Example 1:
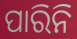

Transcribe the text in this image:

ପାରିନି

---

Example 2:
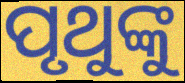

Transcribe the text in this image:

ପୃଥୁଙ୍କୁ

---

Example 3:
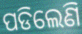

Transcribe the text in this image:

ପଡିଲେଣି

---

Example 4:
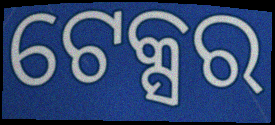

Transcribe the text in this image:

ଟେକ୍ସର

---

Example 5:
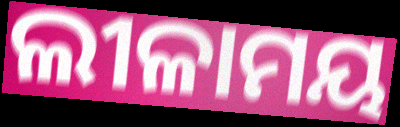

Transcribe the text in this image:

ଲୀଳାମୟ